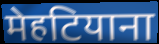
मेहटियाना